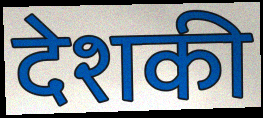
देशकी